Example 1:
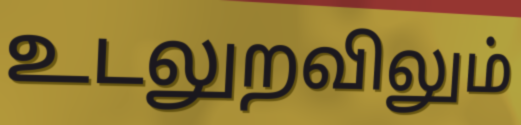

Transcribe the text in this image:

உடலுறவிலும்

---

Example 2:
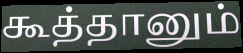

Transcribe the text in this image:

கூத்தானும்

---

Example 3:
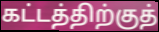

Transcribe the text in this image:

கட்டத்திற்குத்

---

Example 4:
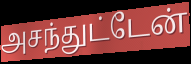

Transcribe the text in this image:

அசந்துட்டேன்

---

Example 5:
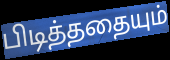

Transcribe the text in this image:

பிடித்ததையும்